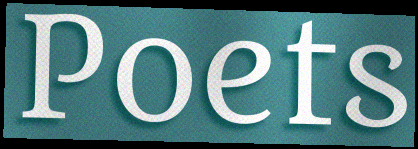
Poets